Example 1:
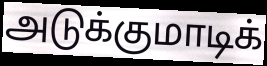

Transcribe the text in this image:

அடுக்குமாடிக்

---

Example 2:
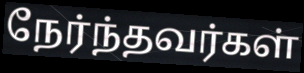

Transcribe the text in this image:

நேர்ந்தவர்கள்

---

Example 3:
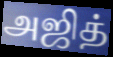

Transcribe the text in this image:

அஜித்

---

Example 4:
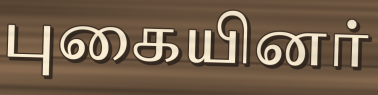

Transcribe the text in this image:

புகையினர்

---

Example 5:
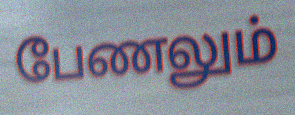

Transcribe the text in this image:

பேணலும்